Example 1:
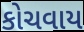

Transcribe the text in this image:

કોચવાય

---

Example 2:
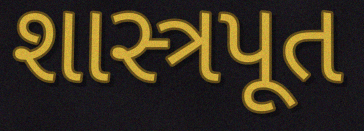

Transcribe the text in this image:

શાસ્ત્રપૂત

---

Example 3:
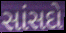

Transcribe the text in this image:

સાંસદો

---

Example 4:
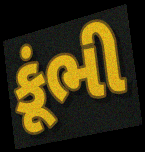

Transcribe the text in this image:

કૂંભી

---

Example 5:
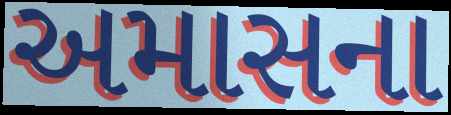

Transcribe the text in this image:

અમાસના